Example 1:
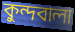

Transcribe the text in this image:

কুন্দবালা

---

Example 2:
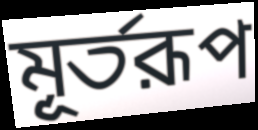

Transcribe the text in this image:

মূর্তরূপ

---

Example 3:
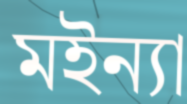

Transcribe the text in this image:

মইন্যা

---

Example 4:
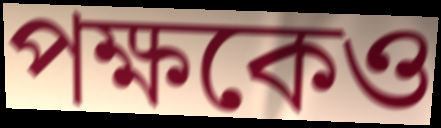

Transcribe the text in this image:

পক্ষকেও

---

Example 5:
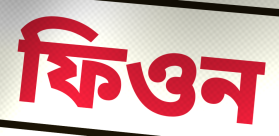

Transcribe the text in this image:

ফিওন